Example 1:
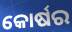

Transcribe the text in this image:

କୋର୍ଷର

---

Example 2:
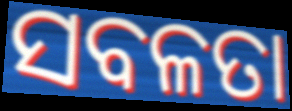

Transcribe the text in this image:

ସବଳତା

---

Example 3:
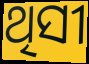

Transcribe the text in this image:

ଥିସୀ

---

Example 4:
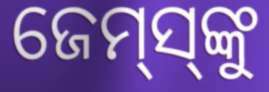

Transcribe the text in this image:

ଜେମ୍‌ସ୍‌ଙ୍କୁ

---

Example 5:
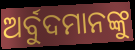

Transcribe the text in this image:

ଅର୍ବୁଦମାନଙ୍କୁ